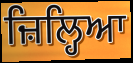
ਜ਼ਿਲ੍ਹਿਆ